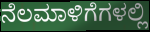
ನೆಲಮಾಳಿಗೆಗಳಲ್ಲಿ